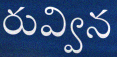
రువ్విన